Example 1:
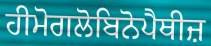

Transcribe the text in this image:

ਹੀਮੋਗਲੋਬਿਨੋਪੈਥੀਜ਼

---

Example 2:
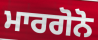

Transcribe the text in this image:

ਮਾਰਗੋਨੋ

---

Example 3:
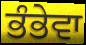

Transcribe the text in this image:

ਭੰਭੇਵਾ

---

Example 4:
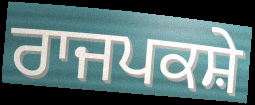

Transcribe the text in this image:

ਰਾਜਪਕਸ਼ੇ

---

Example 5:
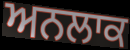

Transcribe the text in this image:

ਅਨਲਾਕ